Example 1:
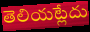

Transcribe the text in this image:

తెలియట్లేదు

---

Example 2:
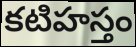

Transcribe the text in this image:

కటిహస్తం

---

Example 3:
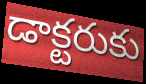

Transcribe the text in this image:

డాక్టరుకు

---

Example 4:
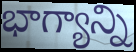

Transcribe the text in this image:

భాగ్యాన్ని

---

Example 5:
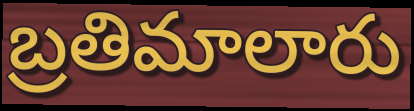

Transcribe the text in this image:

బ్రతిమాలారు